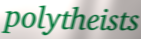
polytheists